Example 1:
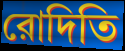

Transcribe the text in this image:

রোদিতি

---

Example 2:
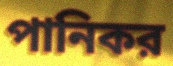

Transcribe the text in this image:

পানিকর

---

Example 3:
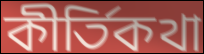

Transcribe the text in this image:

কীর্তিকথা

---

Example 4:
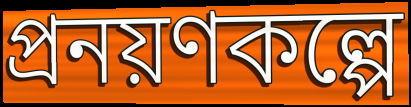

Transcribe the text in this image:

প্রনয়ণকল্পে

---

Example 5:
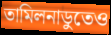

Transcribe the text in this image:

তামিলনাডুতেও